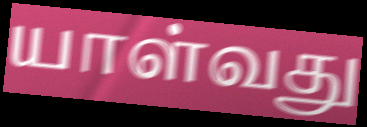
யாள்வது